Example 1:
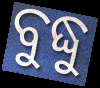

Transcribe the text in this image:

ବୁଦ୍ଧୁ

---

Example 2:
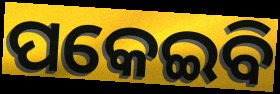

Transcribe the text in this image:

ପକେଇବି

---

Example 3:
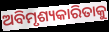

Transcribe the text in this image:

ଅବିମୃଶ୍ୟକାରିତାକୁ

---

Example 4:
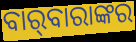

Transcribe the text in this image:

ବାର୍‌ବାରାଙ୍କର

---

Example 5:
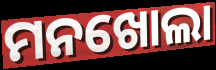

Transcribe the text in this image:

ମନଖୋଲା